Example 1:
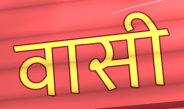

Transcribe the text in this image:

वासी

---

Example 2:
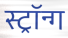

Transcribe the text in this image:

स्ट्रॉन्ग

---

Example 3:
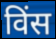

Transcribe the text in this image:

विंस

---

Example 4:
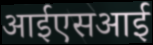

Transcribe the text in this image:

आईएसआई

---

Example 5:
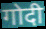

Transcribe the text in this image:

गोदी